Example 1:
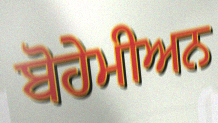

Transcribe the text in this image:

ਬੋਹੇਮੀਅਨ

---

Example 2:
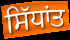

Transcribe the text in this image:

ਸਿੱਧਾਂਤ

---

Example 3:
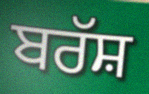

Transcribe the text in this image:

ਬਰੱਸ਼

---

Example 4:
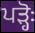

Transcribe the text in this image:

ਪੜ੍ਹੋਃ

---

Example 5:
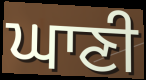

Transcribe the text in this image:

ਘਾਣੀ